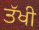
ਤੱਖੀ